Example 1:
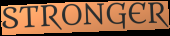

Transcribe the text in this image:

STRONGER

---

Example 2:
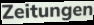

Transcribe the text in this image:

Zeitungen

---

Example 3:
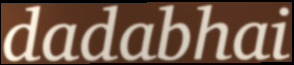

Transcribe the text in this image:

dadabhai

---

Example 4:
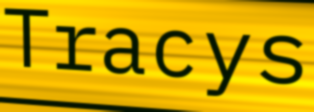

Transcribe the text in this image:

Tracys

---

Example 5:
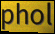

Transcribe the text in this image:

phol